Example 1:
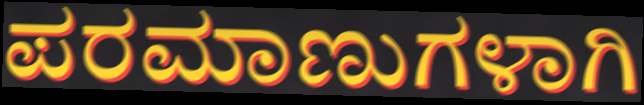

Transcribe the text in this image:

ಪರಮಾಣುಗಳಾಗಿ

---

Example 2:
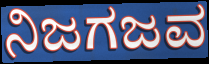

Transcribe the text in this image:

ನಿಜಗಜವ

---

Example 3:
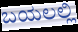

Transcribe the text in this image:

ಬಯಲಲ್ಲಿ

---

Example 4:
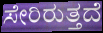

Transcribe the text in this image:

ಸೇರಿರುತ್ತದೆ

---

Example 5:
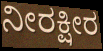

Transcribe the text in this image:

ನೀರಕ್ಷೀರ